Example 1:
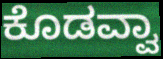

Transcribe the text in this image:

ಕೊಡವ್ವಾ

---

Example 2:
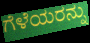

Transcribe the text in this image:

ಗೆಳೆಯರನ್ನು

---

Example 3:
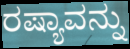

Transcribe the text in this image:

ರಷ್ಯಾವನ್ನು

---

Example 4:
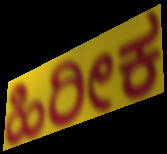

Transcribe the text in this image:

ಹಿರೀಕ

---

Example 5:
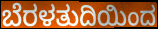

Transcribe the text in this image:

ಬೆರಳತುದಿಯಿಂದ